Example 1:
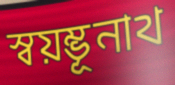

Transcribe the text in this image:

স্বয়ম্ভূনাথ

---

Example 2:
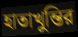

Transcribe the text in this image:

হাতাখুন্তির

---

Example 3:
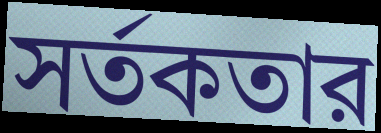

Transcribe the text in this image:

সর্তকতার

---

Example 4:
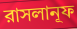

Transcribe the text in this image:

রাসলানূফ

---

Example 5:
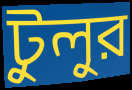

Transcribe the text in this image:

টুলুর